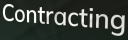
Contracting